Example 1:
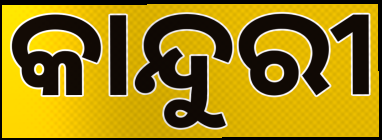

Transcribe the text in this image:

କାନ୍ଦୁରୀ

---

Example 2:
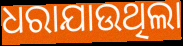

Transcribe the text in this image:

ଧରାଯାଉଥିଲା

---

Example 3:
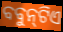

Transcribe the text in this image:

ବବୁନ୍‍ଟିଏ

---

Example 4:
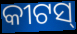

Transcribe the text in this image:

କୀଟସ୍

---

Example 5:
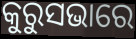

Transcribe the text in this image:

କୁରୁସଭାରେ